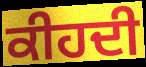
ਕੀਹਦੀ